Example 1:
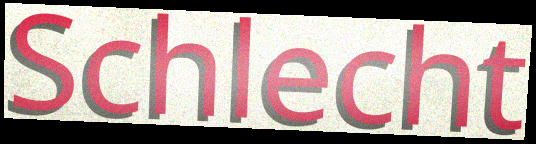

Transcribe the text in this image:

Schlecht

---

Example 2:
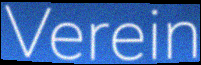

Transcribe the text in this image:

Verein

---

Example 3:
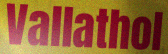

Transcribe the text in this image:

Vallathol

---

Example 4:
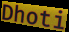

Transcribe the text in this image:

Dhoti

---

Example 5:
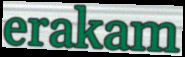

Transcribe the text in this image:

erakam